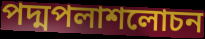
পদ্মপলাশলোচন